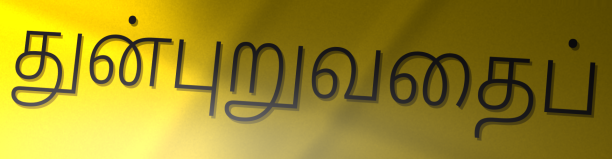
துன்புறுவதைப்